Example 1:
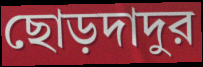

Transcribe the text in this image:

ছোড়দাদুর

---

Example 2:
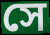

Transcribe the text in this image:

সে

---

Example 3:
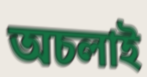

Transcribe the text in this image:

অচলাই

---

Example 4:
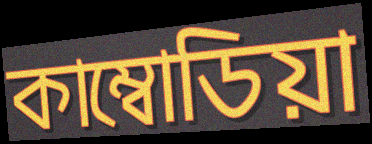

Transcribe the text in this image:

কাম্বোডিয়া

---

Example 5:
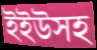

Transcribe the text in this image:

ইইউসহ